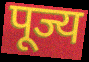
पूज्य